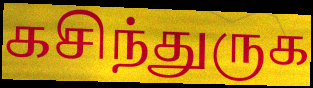
கசிந்துருக